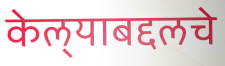
केल्याबद्दलचे